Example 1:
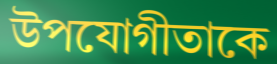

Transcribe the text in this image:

উপযোগীতাকে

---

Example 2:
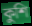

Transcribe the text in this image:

কুশি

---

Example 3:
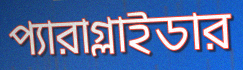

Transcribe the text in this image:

প্যারাগ্লাইডার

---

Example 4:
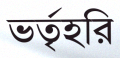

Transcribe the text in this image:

ভর্তৃহরি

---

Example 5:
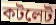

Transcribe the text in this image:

কটলেট